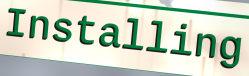
Installing